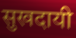
सुखदायी